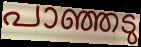
പാഞ്ഞടു